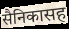
सैनिकासह